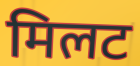
मिलट